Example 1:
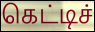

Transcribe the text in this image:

கெட்டிச்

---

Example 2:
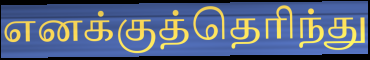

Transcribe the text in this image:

எனக்குத்தெரிந்து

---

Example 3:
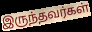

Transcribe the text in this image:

இருந்தவர்கள்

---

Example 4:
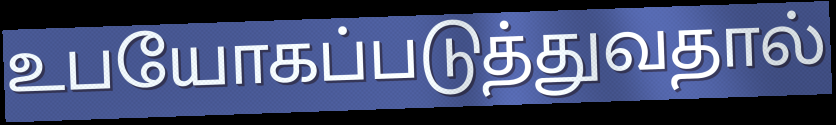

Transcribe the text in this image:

உபயோகப்படுத்துவதால்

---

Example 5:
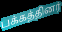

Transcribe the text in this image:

பக்கத்தினர்